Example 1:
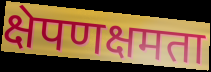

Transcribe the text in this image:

क्षेपणक्षमता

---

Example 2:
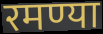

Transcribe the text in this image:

रमण्या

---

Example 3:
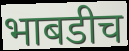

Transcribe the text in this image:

भाबडीच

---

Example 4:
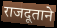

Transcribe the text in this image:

राजदूताने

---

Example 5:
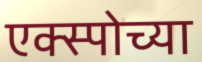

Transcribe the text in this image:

एक्स्पोच्या